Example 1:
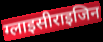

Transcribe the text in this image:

ग्लाइसीराइजिन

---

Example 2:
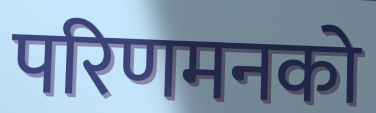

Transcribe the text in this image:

परिणमनको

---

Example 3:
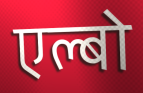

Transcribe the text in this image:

एल्बो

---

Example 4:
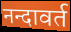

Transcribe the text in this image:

नन्दावर्त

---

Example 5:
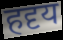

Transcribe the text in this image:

हदृय